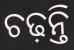
ଚଢ଼ନ୍ତି